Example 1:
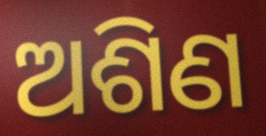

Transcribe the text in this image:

ଅଶିଣ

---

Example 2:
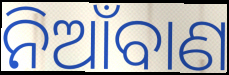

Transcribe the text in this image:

ନିଆଁବାଣ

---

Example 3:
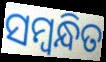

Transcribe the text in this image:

ସମ୍ଵନ୍ଧିତ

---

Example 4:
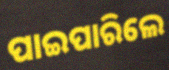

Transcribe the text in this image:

ପାଇପାରିଲେ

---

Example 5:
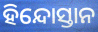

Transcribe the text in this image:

ହିନ୍ଦୋସ୍ତାନ